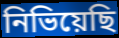
নিভিয়েছি